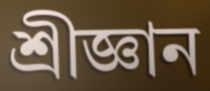
শ্ৰীজ্ঞান